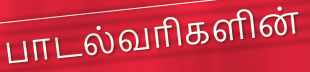
பாடல்வரிகளின்